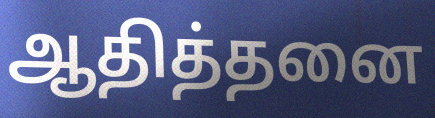
ஆதித்தனை